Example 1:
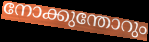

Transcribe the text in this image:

നോക്കുന്തോറും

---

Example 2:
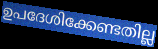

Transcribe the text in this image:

ഉപദേശിക്കേണ്ടതില്ല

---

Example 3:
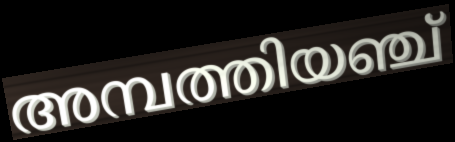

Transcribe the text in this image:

അമ്പത്തിയഞ്ച്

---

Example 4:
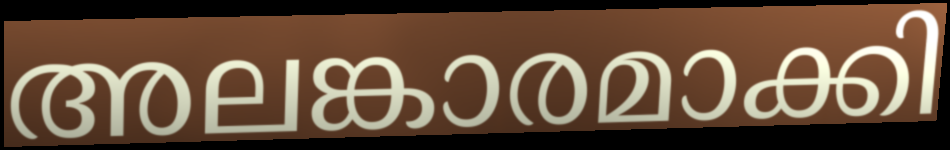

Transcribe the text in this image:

അലങ്കാരമാക്കി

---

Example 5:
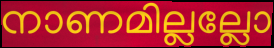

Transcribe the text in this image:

നാണമില്ലല്ലോ